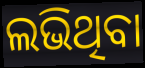
ଲଭିଥିବା